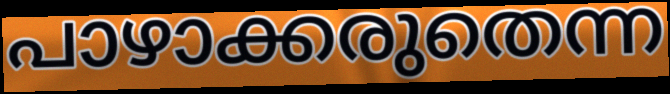
പാഴാക്കരുതെന്ന